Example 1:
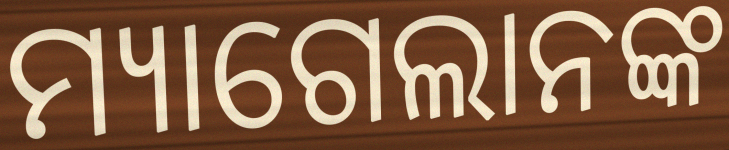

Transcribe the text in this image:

ମ୍ୟାଗେଲାନଙ୍କ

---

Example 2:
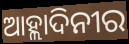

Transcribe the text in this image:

ଆହ୍ଲାଦିନୀର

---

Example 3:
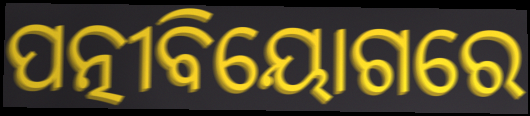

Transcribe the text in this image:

ପତ୍ନୀବିୟୋଗରେ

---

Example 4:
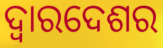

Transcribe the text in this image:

ଦ୍ୱାରଦେଶର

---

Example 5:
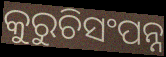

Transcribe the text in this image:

କୁରୁଚିସଂପନ୍ନ